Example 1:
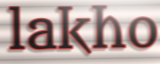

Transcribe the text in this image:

lakho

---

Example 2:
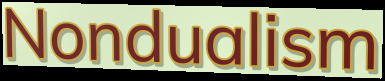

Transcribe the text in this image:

Nondualism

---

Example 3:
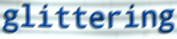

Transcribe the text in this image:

glittering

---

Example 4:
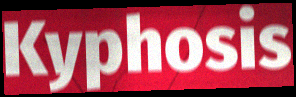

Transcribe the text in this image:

Kyphosis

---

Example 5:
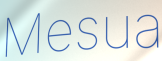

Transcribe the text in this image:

Mesua